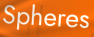
Spheres